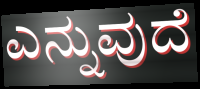
ಎನ್ನುವುದೆ